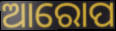
ଆରୋପ